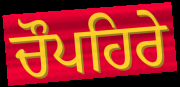
ਚੌਪਹਿਰੇ